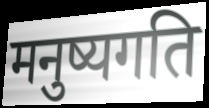
मनुष्यगति